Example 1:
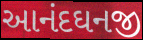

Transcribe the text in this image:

આનંદઘનજી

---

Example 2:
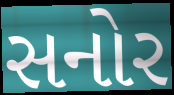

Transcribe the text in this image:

સનોર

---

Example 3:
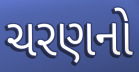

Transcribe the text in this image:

ચરણનો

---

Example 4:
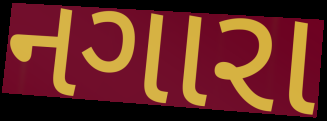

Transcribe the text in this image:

નગારા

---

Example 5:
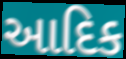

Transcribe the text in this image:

આદિક